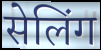
सेलिंग